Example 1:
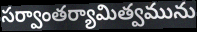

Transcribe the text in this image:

సర్వాంతర్యామిత్వమును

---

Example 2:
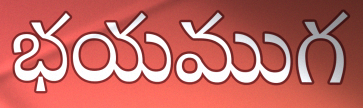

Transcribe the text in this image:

భయముగ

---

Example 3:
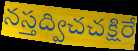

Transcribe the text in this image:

నస్తద్విచచక్షిరే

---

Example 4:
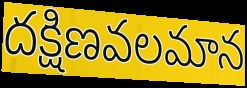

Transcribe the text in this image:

దక్షిణవలమాన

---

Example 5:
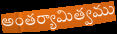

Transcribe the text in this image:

అంతర్యామిత్వము